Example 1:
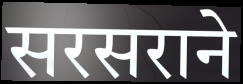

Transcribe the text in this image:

सरसराने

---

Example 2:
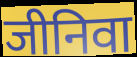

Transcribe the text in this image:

जीनिवा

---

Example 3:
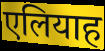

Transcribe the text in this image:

एलियाह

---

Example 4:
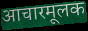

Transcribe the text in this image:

आचारमूलक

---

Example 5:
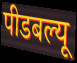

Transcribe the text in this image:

पीडबल्यू